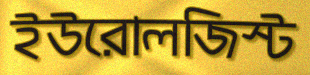
ইউরোলজিস্ট